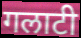
गलाटी